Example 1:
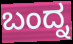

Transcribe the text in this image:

ಬಂದ್ನ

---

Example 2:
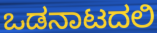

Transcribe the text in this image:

ಒಡನಾಟದಲಿ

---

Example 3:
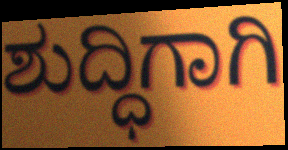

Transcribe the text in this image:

ಶುದ್ಧಿಗಾಗಿ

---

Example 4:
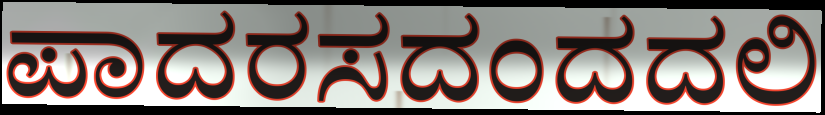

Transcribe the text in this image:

ಪಾದರಸದಂದದಲಿ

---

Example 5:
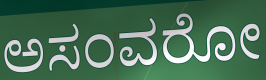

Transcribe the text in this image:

ಅಸಂವರೋ